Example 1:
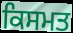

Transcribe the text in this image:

ਕਿਸਮਤ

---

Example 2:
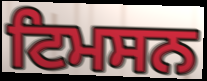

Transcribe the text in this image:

ਟਿਮਸਨ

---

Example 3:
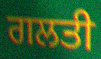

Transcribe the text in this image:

ਗਲਤੀ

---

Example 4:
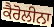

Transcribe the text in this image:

ਕੈਰੋਲੀਨਾ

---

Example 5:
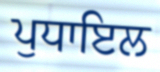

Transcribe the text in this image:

ਪੁਧਾਇਲ